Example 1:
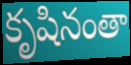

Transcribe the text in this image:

కృషినంతా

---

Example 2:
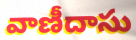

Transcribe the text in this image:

వాణీదాసు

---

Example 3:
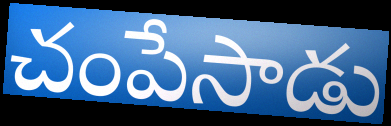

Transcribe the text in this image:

చంపేసాడు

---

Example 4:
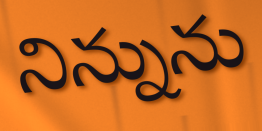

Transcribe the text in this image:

నిన్నును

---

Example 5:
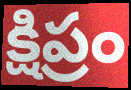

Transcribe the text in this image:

క్షిప్రం